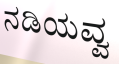
ನಡಿಯವ್ವ